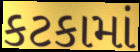
કટકામાં